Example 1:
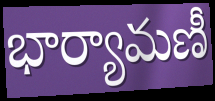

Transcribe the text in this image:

భార్యామణీ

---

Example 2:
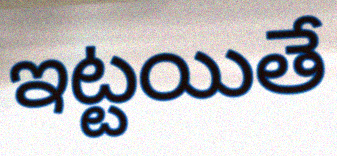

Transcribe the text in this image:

ఇట్టయితే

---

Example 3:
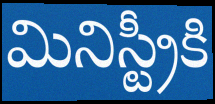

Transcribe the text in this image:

మినిస్ట్రీకి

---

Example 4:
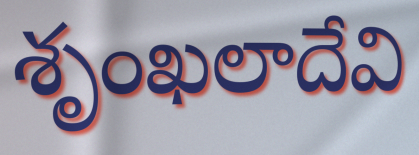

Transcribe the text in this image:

శృంఖలాదేవి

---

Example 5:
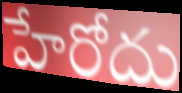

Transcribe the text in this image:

హేరోదు